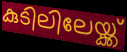
കുടിലിലേയ്ക്ക്